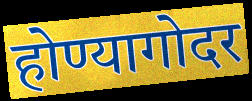
होण्यागोदर